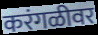
करंगळीवर